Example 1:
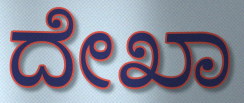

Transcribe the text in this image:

ದೇಖಾ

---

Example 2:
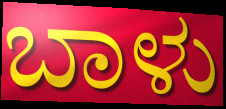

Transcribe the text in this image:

ಬಾಳು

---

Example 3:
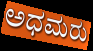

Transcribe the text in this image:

ಅಧಮರು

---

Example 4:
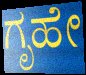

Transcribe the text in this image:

ಗೃಹೇ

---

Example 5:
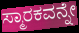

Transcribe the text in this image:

ಸ್ಮಾರಕವನ್ನೇ